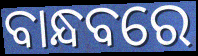
ବାନ୍ଧବରେ